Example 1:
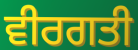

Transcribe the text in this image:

ਵੀਰਗਤੀ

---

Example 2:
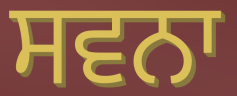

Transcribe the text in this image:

ਸਵਨਾ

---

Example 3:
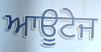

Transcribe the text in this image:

ਆਊਟੇਜ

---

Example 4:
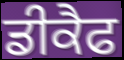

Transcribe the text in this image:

ਡੀਕੈਫ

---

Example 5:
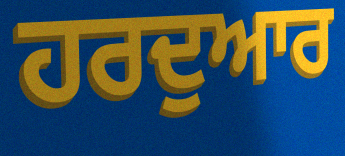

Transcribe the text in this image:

ਹਰਦੁਆਰ